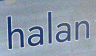
halan